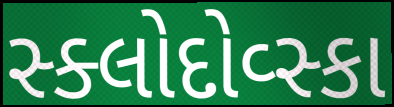
સ્ક્લોદોવ્સ્કા